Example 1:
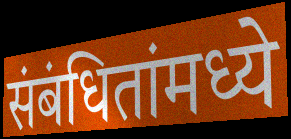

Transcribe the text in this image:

संबंधितांमध्ये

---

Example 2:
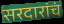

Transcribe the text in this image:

सरदारांचं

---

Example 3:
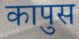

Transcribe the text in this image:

कापुस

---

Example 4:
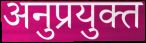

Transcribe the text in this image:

अनुप्रयुक्त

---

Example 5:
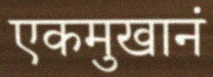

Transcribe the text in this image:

एकमुखानं